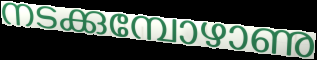
നടക്കുമ്പോഴാണു